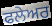
ਫਲੇਅਰ